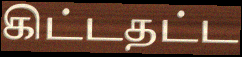
கிட்டதட்ட